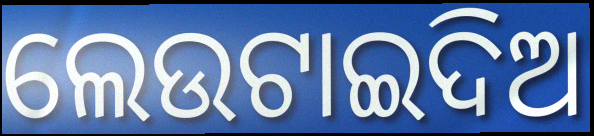
ଲେଉଟାଇଦିଅ